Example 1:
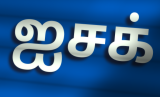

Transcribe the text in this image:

ஐசக்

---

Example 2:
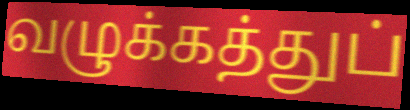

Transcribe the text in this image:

வழுக்கத்துப்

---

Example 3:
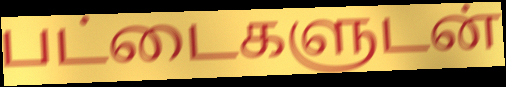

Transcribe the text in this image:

பட்டைகளுடன்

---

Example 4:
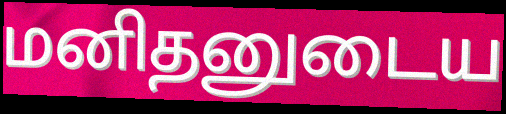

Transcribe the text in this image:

மனிதனுடைய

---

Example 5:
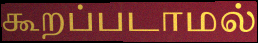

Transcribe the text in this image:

கூறப்படாமல்